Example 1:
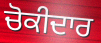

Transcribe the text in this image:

ਚੋਕੀਦਾਰ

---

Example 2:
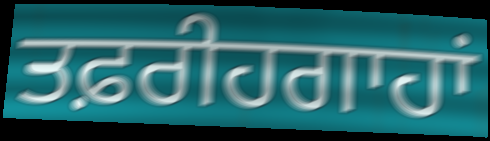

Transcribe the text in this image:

ਤਫ਼ਰੀਹਗਾਹਾਂ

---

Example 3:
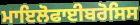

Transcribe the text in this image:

ਮਾਇਲੋਫਾਈਬਰੋਸਿਸ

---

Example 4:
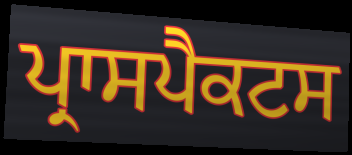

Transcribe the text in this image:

ਪ੍ਰਾਸਪੈਕਟਸ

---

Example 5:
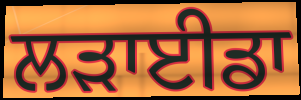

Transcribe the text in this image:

ਲੜਾਈਡਾ